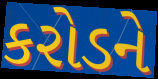
કરોડને